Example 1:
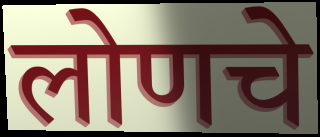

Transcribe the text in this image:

लोणचे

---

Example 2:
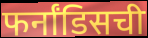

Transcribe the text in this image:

फर्नांडिसची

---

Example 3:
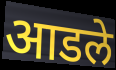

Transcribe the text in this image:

आडले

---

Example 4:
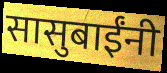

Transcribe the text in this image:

सासुबाईंनी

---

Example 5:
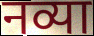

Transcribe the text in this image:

नव्या